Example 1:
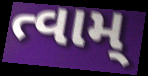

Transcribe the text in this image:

ત્વામ્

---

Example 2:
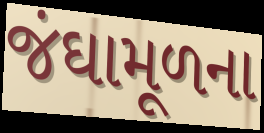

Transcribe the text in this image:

જંઘામૂળના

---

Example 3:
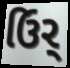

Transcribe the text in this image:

ઉિર્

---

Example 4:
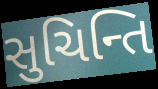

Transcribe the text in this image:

સુચિન્તિ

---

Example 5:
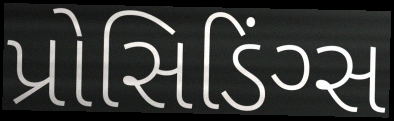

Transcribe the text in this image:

પ્રોસિડિંગ્સ